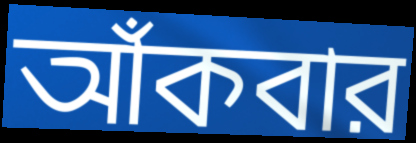
আঁকবার